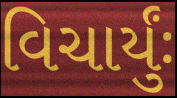
વિચાર્યુંઃ